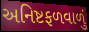
અનિષ્ટફળવાળું